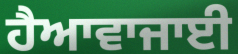
ਹੈਆਵਾਜਾਈ